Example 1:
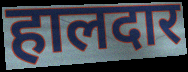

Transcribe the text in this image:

हालदार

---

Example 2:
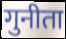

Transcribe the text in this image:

गुनीता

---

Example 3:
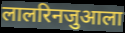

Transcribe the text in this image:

लालरिनजुआला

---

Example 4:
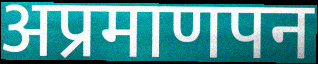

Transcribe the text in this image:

अप्रमाणपन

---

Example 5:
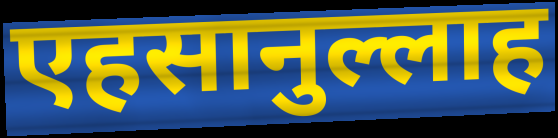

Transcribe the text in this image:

एहसानुल्लाह